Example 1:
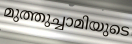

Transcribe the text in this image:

മുത്തുച്ചാമിയുടെ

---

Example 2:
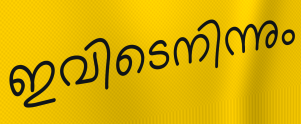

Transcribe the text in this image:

ഇവിടെനിന്നും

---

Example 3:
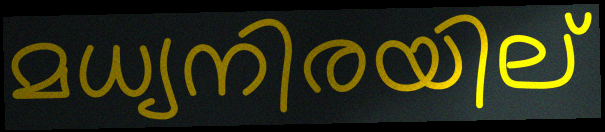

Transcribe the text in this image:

മധ്യനിരയില്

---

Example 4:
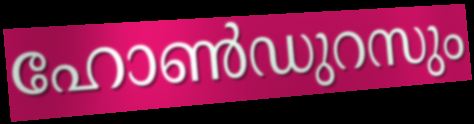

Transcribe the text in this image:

ഹോൺഡുറസും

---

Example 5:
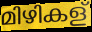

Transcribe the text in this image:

മിഴികള്